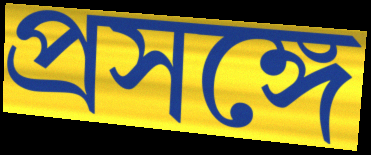
প্রসঙ্গে